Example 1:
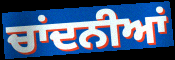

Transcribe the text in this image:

ਚਾਂਦਨੀਆਂ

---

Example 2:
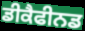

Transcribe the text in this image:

ਡੀਕੈਫੀਨਡ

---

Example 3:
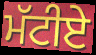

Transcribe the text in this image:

ਮੱਟੀਏ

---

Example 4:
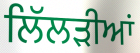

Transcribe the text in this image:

ਲਿੱਲੜੀਆਂ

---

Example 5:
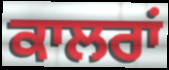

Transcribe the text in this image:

ਕਾਲਰਾਂ